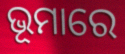
ଭୂମାରେ